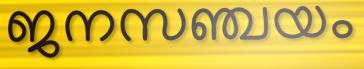
ജനസഞ്ചയം